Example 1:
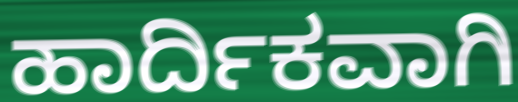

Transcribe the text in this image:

ಹಾರ್ದಿಕವಾಗಿ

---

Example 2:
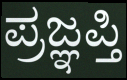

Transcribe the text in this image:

ಪ್ರಜ್ಞಪ್ತಿ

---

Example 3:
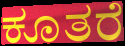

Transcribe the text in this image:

ಕೂತರೆ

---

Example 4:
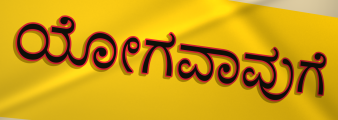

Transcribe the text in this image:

ಯೋಗವಾವುಗೆ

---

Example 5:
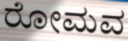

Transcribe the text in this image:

ರೋಮವ